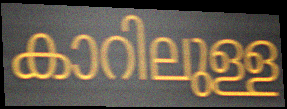
കാറിലുള്ള